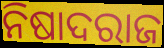
ନିଷାଦରାଜ